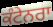
ਕੰਟੇਨਰਾ